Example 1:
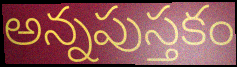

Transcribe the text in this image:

అన్నపుస్తకం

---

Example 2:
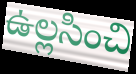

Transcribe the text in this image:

ఉల్లసించి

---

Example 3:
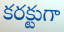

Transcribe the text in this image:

కరక్టుగా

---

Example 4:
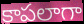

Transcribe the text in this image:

కాపలాగా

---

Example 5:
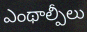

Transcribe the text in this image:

ఎంథాల్పీలు